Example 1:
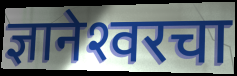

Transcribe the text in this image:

ज्ञानेश्वरचा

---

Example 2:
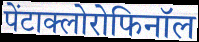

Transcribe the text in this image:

पेंटाक्लोरोफिनॉल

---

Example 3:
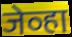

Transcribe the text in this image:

जेव्हा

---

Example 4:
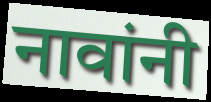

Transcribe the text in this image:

नावांनी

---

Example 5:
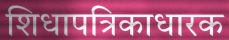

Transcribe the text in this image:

शिधापत्रिकाधारक